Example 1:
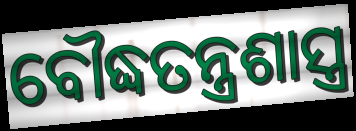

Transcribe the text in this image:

ବୌଦ୍ଧତନ୍ତ୍ରଶାସ୍ତ୍ର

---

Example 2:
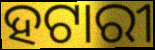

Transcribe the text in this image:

ହଟାରୀ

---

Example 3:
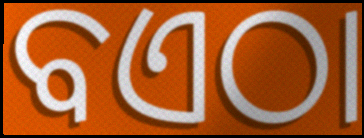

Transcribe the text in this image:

ବଏଠା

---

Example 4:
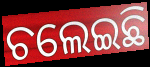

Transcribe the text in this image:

ଚଲେଇଛି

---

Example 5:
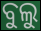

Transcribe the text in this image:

ବୁଲୁ